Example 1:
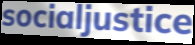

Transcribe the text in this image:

socialjustice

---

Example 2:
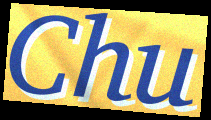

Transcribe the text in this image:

Chu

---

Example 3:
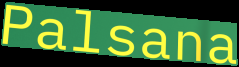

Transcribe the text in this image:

Palsana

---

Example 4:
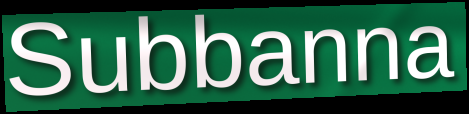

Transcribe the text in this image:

Subbanna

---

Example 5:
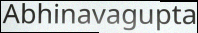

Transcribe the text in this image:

Abhinavagupta